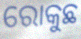
ରୋକୁଛ